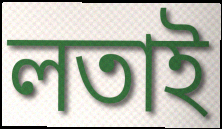
লতাই